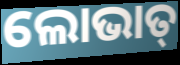
ଲୋଭାତ୍